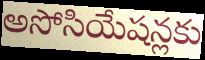
అసోసియేషన్లకు